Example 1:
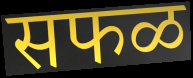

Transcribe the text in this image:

सफळ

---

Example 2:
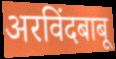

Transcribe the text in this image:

अरविंदबाबू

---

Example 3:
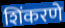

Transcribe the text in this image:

शिंकरणे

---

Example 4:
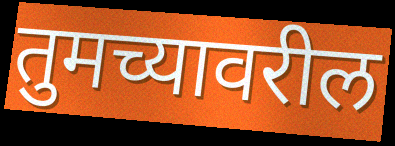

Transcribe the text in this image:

तुमच्यावरील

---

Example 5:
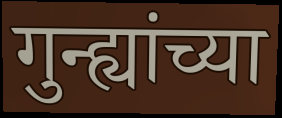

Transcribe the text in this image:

गुन्ह्यांच्या